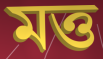
মত্ত